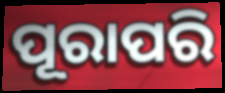
ପୂରାପରି